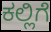
ಕಲ್ಲಿಗೆ